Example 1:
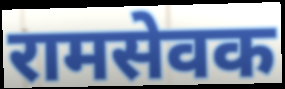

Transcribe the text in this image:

रामसेवक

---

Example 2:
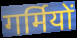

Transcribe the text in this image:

गर्मियों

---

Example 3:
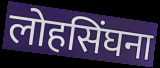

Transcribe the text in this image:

लोहसिंघना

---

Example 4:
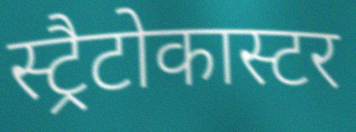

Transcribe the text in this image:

स्ट्रैटोकास्टर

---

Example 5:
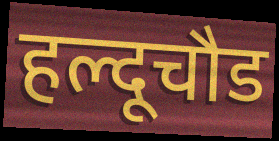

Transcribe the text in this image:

हल्दूचौड